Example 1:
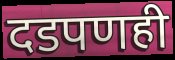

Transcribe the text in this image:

दडपणही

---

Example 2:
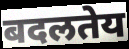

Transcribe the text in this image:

बदलतेय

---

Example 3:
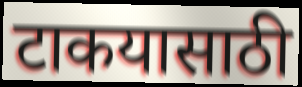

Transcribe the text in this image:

टाकयासाठी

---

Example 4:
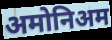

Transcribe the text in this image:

अमोनिअम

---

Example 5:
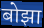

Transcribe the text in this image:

बोझा